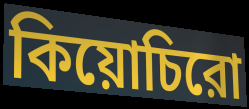
কিয়োচিরো